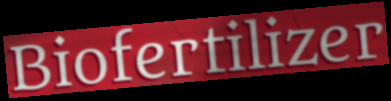
Biofertilizer